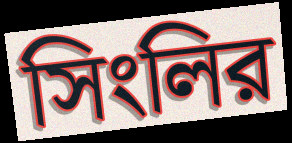
সিংলির